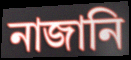
নাজানি